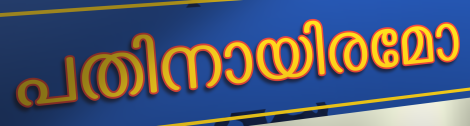
പതിനായിരമോ